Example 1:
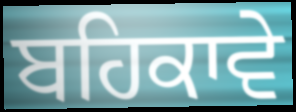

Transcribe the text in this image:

ਬਹਿਕਾਵੇ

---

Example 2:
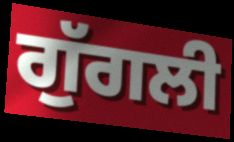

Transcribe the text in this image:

ਗੁੱਗਲੀ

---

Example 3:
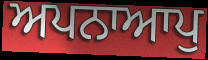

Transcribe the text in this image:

ਅਪਨਾਆਪੁ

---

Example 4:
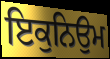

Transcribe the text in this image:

ਇਕੁਨਿਉਮ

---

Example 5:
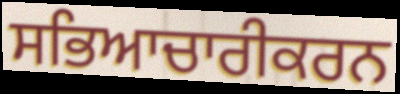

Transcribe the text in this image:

ਸਭਿਆਚਾਰੀਕਰਨ